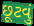
છૂટવું